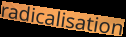
radicalisation